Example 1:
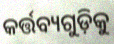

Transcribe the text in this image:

କର୍ତ୍ତବ୍ୟଗୁଡ଼ିକୁ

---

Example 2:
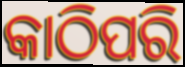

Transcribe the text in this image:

କାଠିପରି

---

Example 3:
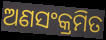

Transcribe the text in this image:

ଅଣସଂକ୍ରମିତ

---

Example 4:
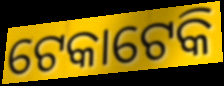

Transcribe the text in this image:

ଟେକାଟେକି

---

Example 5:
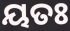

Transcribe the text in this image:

ୟତଃ